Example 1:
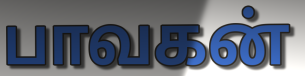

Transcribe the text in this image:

பாவகன்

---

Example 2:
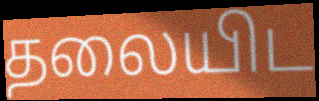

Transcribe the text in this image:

தலையிட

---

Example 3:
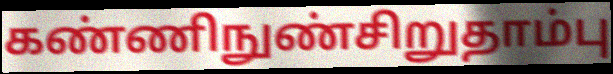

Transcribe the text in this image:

கண்ணிநுண்சிறுதாம்பு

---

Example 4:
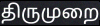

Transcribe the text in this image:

திருமுறை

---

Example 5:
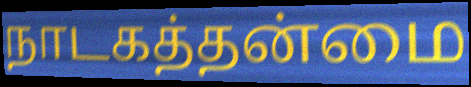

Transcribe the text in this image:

நாடகத்தன்மை